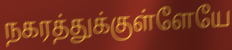
நகரத்துக்குள்ளேயே